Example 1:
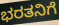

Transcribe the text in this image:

ಭರತನಿಗೆ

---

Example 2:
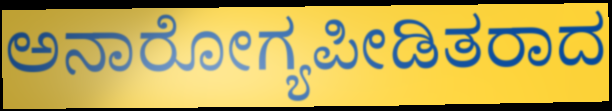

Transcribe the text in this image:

ಅನಾರೋಗ್ಯಪೀಡಿತರಾದ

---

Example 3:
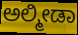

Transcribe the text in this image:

ಅಲ್ಮೀಡಾ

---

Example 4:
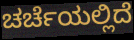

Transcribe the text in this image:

ಚರ್ಚೆಯಲ್ಲಿದೆ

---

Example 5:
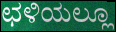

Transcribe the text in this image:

ಛಳಿಯಲ್ಲೂ